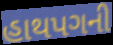
હાથપગની